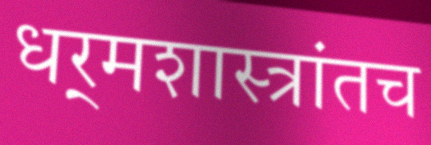
धर्मशास्त्रांतच